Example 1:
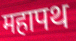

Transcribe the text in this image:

महापथ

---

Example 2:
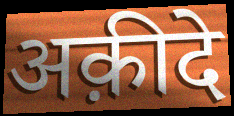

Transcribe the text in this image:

अक़ीदे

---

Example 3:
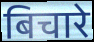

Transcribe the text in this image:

बिचारे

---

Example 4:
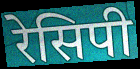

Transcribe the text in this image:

रेसिपी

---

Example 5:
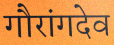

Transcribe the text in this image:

गौरांगदेव